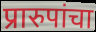
प्रारुपांचा